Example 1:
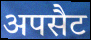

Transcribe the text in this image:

अपसैट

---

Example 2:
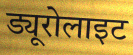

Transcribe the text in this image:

ड्यूरोलाइट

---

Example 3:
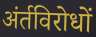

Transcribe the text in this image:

अंर्तविरोधों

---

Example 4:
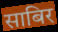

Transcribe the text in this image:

साबिर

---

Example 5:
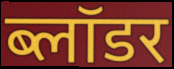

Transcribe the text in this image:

ब्लॉडर